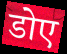
डोए